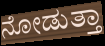
ನೋಡುತ್ತಾ